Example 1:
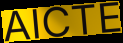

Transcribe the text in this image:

AICTE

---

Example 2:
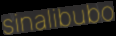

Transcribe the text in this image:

sinalibubo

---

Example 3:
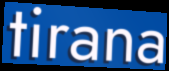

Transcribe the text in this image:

tirana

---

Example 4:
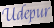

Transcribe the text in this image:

Udepur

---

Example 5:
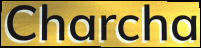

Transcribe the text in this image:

Charcha